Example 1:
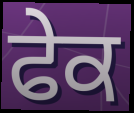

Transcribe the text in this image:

ਫੇਕ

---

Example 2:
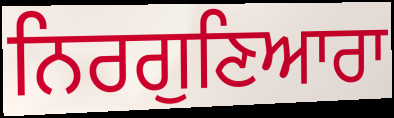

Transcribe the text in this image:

ਨਿਰਗੁਣਿਆਰਾ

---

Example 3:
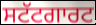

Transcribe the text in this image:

ਸਟੱਟਗਾਰਟ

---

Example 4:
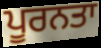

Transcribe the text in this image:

ਪੂਰਨਤਾ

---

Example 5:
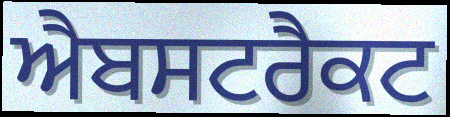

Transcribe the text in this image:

ਐਬਸਟਰੈਕਟ